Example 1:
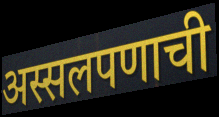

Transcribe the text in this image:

अस्सलपणाची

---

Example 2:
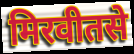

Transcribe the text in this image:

मिरवीतसे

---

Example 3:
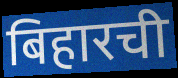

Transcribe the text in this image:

बिहारची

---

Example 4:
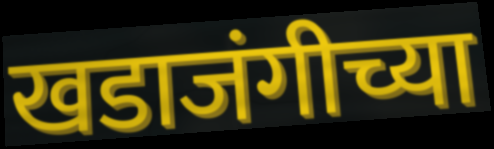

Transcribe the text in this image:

खडाजंगीच्या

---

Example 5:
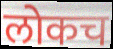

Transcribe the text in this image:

लोकच